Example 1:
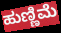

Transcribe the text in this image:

ಹುಣ್ಣಿಮೆ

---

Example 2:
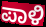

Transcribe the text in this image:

ಪಾಳಿ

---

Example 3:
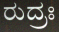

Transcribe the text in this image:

ರುದ್ರಃ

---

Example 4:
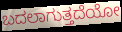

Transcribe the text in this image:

ಬದಲಾಗುತ್ತದೆಯೋ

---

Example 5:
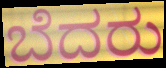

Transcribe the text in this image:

ಬೆದರು